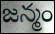
జన్మం